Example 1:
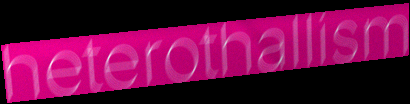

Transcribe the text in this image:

heterothallism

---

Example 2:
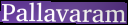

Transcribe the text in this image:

Pallavaram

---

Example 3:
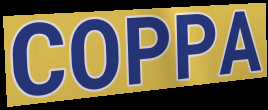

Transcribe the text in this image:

COPPA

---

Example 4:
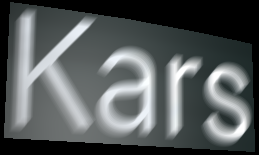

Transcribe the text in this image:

Kars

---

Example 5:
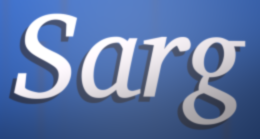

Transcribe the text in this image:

Sarg